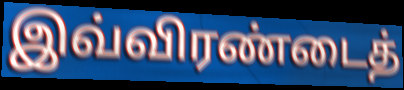
இவ்விரண்டைத்